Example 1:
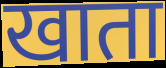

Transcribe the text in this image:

खाता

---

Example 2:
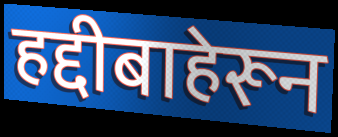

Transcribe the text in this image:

हद्दीबाहेरून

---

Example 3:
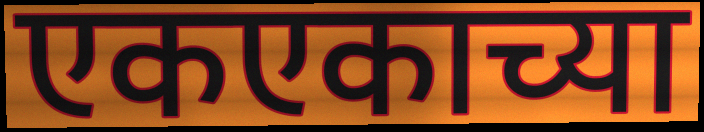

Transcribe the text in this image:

एकएकाच्या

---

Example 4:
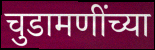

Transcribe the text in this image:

चुडामणींच्या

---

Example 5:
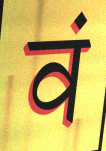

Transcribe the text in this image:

वं